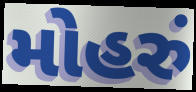
મોહરું